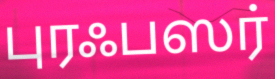
புரஃபஸர்